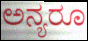
ಅನ್ಯರೂ